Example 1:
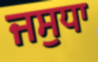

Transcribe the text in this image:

ਜਸੁਧਾ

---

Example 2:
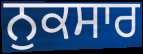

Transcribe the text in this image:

ਨੁਕਸਾਰ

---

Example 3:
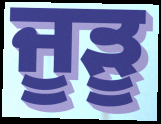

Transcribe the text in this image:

ਜੂੜੂ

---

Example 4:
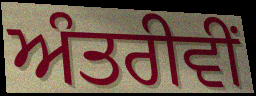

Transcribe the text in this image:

ਅੰਤਰੀਵੀਂ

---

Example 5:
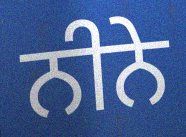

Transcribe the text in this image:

ਨੀਨੇ